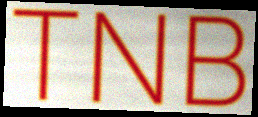
TNB